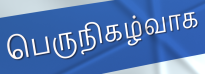
பெருநிகழ்வாக